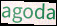
agoda